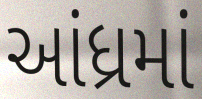
આંધ્રમાં